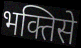
भक्तिसे